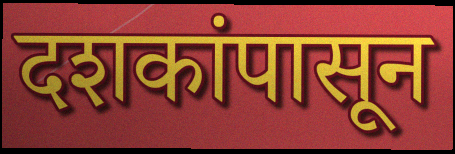
दशकांपासून